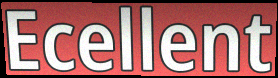
Ecellent